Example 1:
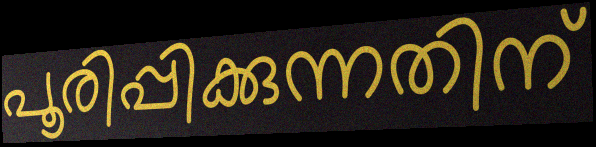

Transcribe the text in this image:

പൂരിപ്പിക്കുന്നതിന്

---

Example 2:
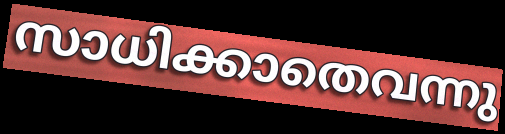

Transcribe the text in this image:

സാധിക്കാതെവന്നു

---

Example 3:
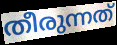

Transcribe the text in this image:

തീരുന്നത്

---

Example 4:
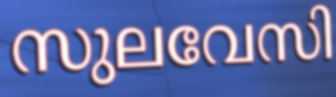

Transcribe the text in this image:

സുലവേസി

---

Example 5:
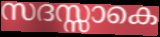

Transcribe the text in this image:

സദസ്സാകെ